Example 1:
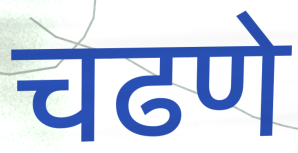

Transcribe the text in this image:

चढणे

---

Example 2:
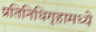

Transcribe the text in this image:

प्रतिनिधिगृहामध्ये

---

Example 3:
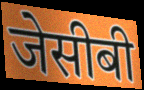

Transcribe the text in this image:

जेसीबी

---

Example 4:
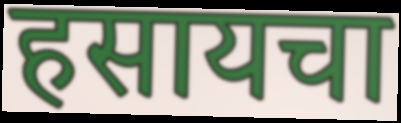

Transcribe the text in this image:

हसायचा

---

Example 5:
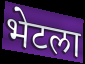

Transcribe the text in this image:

भेटला